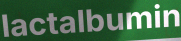
lactalbumin